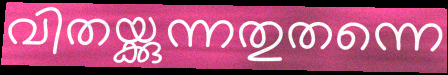
വിതയ്ക്കുന്നതുതന്നെ